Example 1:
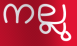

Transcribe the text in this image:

നല്ലു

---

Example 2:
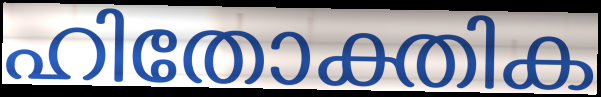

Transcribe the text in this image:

ഹിതോക്തിക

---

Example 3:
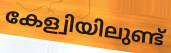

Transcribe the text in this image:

കേള്വിയിലുണ്ട്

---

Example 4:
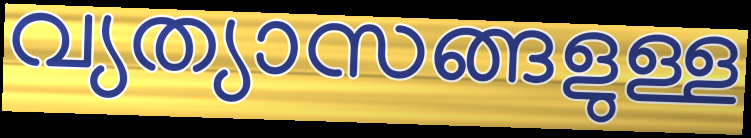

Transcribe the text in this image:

വ്യത്യാസങ്ങളുള്ള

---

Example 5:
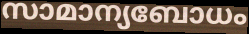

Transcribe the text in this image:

സാമാന്യബോധം